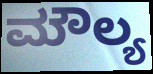
ಮೌಲ್ಯ